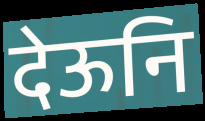
देऊनि